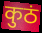
कुठं